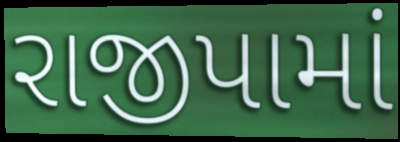
રાજીપામાં